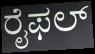
ರೈಫಲ್